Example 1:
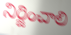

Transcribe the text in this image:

నిర్జించాలి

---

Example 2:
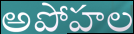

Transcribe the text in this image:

అపోహల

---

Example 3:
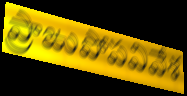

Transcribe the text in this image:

ప్రాఙుపోపవివేశ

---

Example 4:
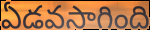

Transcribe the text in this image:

ఏడవసాగింది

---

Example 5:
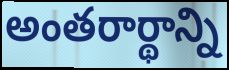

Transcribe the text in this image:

అంతరార్థాన్ని